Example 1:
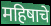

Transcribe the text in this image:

महिषाचे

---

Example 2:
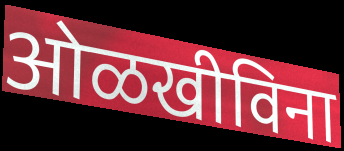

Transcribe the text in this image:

ओळखीविना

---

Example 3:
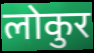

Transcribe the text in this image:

लोकुर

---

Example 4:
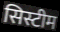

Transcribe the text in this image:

सिस्टीम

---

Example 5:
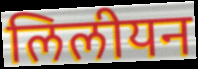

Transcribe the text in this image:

लिलीयन